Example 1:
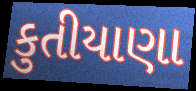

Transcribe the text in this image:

કુતીયાણા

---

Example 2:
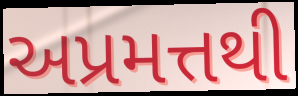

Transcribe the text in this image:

અપ્રમત્તથી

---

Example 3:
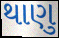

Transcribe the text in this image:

થાણુ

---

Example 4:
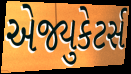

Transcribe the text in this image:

એજ્યુકેટર્સ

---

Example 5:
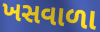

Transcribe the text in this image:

ખસવાળા